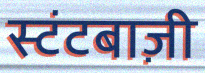
स्टंटबाज़ी